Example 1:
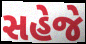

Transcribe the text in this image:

સહેજે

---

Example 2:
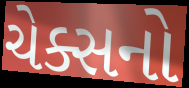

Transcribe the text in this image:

ચેક્સનો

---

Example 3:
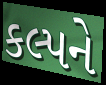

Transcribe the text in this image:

કલ્પને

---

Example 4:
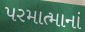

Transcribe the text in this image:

પરમાત્માનાં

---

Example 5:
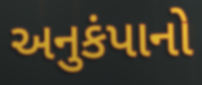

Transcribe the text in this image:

અનુકંપાનો